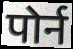
पोर्न